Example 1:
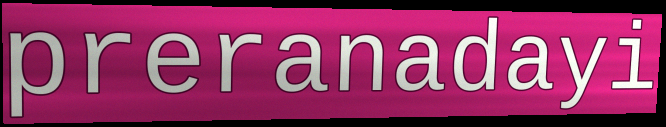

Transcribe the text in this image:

preranadayi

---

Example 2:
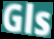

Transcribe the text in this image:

Gls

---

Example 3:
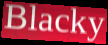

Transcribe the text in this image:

Blacky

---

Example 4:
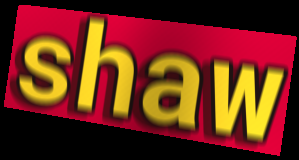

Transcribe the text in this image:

shaw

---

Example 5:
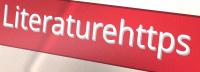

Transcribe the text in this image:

Literaturehttps